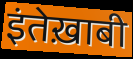
इंतेख़ाबी